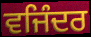
ਵਜਿੰਦਰ